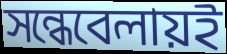
সন্ধেবেলায়ই